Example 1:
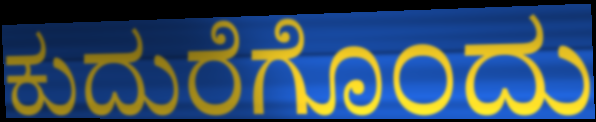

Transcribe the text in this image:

ಕುದುರೆಗೊಂದು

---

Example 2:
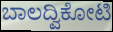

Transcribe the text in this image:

ಬಾಲದ್ವಿಕೋಟಿ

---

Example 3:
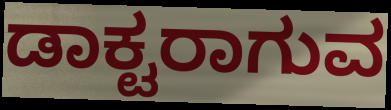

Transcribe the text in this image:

ಡಾಕ್ಟರಾಗುವ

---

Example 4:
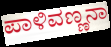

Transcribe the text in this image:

ಪಾಳಿವಣ್ಣನಾ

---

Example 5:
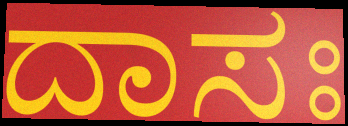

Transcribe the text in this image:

ದಾಸಃ